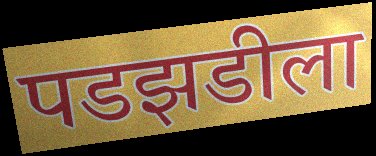
पडझडीला